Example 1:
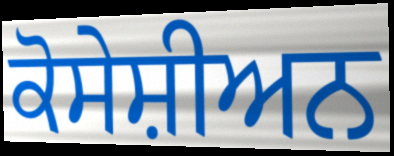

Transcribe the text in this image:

ਕੋਸੇਸ਼ੀਅਨ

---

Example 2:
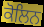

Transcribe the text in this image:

ਕੋਲਿਨ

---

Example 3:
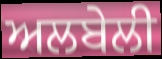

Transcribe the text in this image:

ਅਲਬੇਲੀ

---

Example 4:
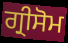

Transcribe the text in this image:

ਗ੍ਰੀਸੋਮ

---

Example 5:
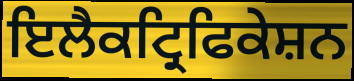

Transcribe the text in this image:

ਇਲੈਕਟ੍ਰਿਫਿਕੇਸ਼ਨ